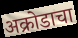
अक्रोडाचा